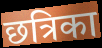
छत्रिका